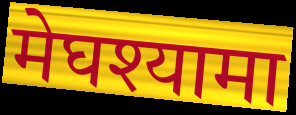
मेघश्यामा